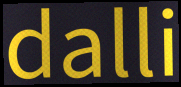
dalli